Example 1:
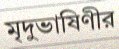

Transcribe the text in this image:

মৃদুভাষিণীর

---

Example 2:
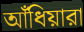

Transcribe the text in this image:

আঁধিয়ারা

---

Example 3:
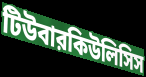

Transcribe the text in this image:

টিউবারকিউলিসিস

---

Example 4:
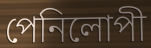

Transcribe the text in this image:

পেনিলোপী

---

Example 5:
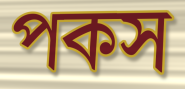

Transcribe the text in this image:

পকস